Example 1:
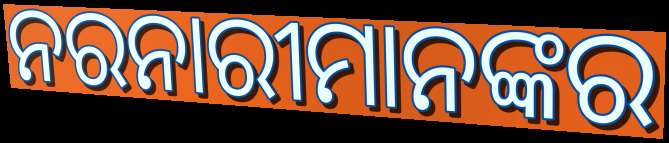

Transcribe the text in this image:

ନରନାରୀମାନଙ୍କର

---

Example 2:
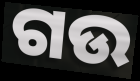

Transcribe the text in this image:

ଗଉ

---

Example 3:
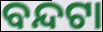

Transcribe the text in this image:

ବନ୍ଦଟା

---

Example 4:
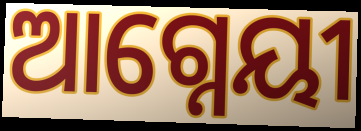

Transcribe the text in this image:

ଆଗ୍ନେୟୀ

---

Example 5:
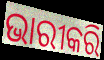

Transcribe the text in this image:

ଭାରୀକରି